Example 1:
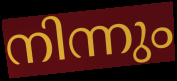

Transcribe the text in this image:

നിന്നും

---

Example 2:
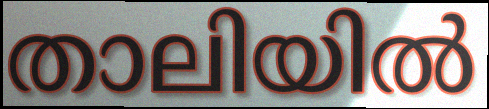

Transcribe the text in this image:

താലിയിൽ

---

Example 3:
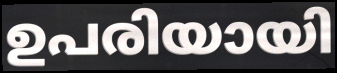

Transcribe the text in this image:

ഉപരിയായി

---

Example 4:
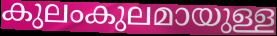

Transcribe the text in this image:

കുലംകുലമായുള്ള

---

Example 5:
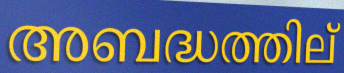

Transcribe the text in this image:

അബദ്ധത്തില്